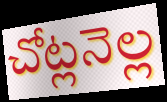
చోట్లనెల్ల